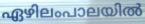
ഏഴിലംപാലയിൽ